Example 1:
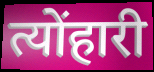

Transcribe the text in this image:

त्योंहारी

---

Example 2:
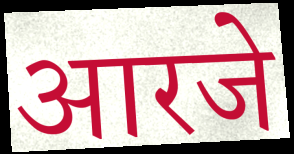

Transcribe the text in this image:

आरजे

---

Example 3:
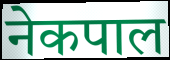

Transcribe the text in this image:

नेकपाल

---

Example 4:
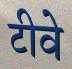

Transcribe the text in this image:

टीवे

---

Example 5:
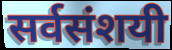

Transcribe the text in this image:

सर्वसंशयी